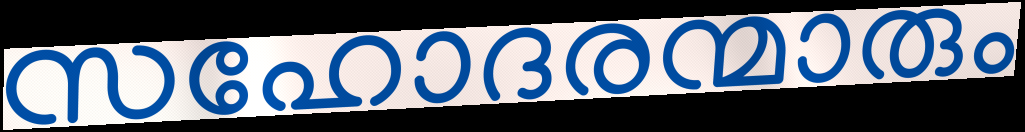
സഹോദരന്മാരും